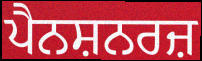
ਪੈਨਸ਼ਨਰਜ਼